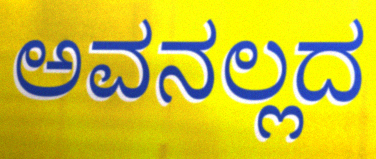
ಅವನಲ್ಲದ